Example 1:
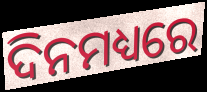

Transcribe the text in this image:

ଦିନମଧ୍ୟରେ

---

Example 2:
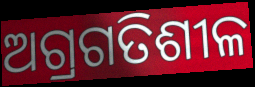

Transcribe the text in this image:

ଅଗ୍ରଗତିଶୀଳ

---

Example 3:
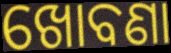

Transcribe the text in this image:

ଖୋବଣା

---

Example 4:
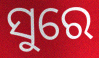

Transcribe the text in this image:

ସୁରେ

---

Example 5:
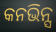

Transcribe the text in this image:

କନଭିନ୍ସ